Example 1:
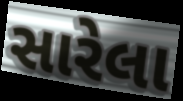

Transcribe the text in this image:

સારેલા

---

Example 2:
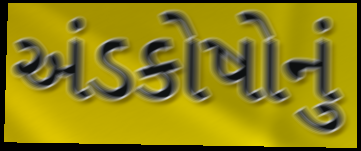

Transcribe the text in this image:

અંડકોષોનું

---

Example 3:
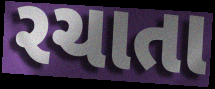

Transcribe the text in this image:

રચાતા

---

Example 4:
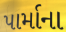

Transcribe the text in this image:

પાર્માના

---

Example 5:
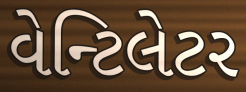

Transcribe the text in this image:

વેન્‍ટિલેટર